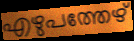
എഴുപത്തേഴ്